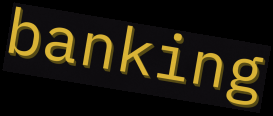
banking